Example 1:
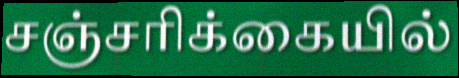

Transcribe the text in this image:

சஞ்சரிக்கையில்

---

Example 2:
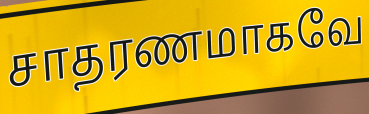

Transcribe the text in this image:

சாதரணமாகவே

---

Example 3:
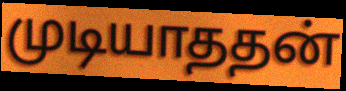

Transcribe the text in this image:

முடியாததன்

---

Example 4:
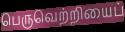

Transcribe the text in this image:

பெருவெற்றியைப்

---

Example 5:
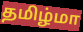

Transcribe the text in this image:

தமிழ்மா